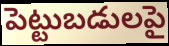
పెట్టుబడులపై